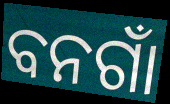
ବନଗାଁ